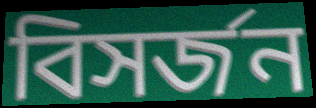
বিসৰ্জন